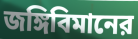
জঙ্গিবিমানের